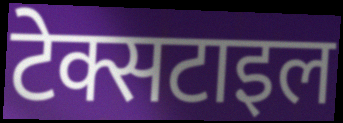
टेक्सटाइल